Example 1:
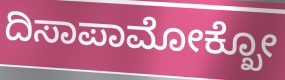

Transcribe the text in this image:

ದಿಸಾಪಾಮೋಕ್ಖೋ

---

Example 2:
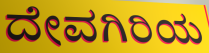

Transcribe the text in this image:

ದೇವಗಿರಿಯ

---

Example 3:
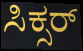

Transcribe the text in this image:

ಸಿಕ್ಸರ್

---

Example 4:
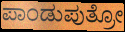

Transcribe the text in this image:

ಪಾಂಡುಪುತ್ರೋ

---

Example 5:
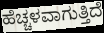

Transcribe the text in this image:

ಹೆಚ್ಚಳವಾಗುತ್ತಿದೆ